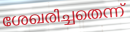
ശേഖരിച്ചതെന്ന്